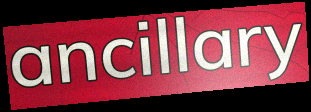
ancillary